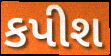
કપીશ